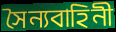
সৈন্যবাহিনী